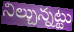
నిల్చున్నట్టు